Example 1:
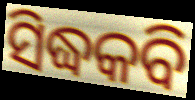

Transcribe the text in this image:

ସିଦ୍ଧକବି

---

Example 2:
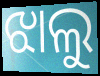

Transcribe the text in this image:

ଝାଲୁ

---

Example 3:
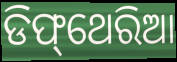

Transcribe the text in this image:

ଡିଫ୍‌ଥେରିଆ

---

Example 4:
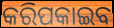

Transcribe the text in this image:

କରିପକାଇବ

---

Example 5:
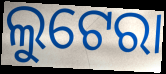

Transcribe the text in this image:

ଲୁଟେରା